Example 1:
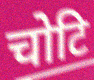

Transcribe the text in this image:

चोटि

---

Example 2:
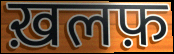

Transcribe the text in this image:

ख़लफ़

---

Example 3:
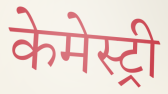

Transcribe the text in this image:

केमेस्ट्री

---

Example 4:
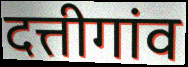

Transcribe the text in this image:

दत्तीगांव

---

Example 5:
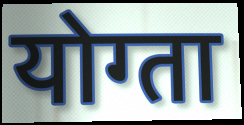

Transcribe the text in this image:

योग्ता